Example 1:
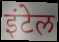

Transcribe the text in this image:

इंटेल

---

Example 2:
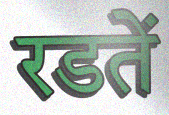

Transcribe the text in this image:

रडतें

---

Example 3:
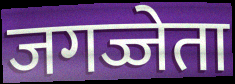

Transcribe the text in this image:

जगज्जेता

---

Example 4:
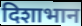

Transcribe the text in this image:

दिशाभान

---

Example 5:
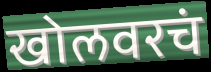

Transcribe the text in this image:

खोलवरचं